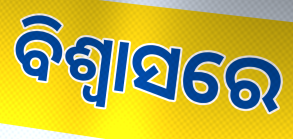
ବିଶ୍ବାସରେ